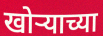
खोऱ्याच्या